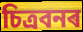
চিত্ৰবনৰ